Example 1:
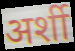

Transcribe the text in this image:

अर्शी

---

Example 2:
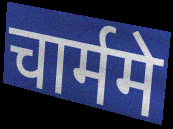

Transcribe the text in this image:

चार्ममे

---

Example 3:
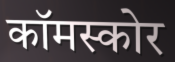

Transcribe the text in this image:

कॉमस्कोर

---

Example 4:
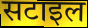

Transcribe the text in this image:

सटाइल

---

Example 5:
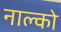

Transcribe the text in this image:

नाल्को